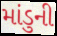
માંડુની